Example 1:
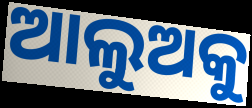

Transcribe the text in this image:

ଆଲୁଅକୁ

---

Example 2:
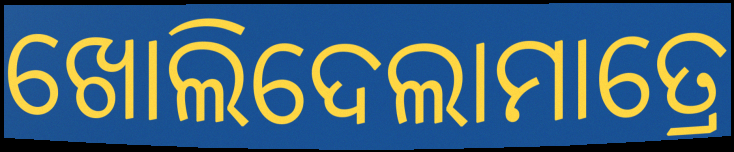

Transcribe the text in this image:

ଖୋଲିଦେଲାମାତ୍ରେ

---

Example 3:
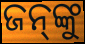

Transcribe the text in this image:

ଜନ୍‍ଙ୍କୁ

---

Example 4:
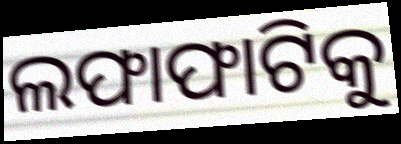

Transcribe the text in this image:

ଲଫାଫାଟିକୁ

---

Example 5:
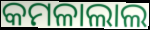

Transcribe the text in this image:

କମଳାଲାଲ